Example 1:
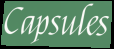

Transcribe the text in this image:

Capsules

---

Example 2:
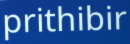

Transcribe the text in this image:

prithibir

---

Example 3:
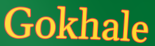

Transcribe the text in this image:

Gokhale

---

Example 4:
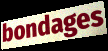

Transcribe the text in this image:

bondages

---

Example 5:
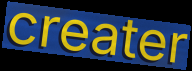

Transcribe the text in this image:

creater